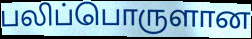
பலிப்பொருளான